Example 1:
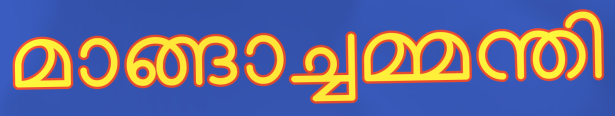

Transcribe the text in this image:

മാങ്ങാച്ചമ്മന്തി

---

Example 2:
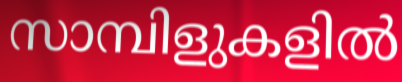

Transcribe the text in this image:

സാമ്പിളുകളിൽ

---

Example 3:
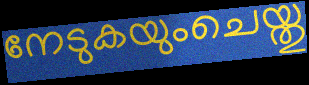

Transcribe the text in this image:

നേടുകയുംചെയ്തു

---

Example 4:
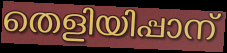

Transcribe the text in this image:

തെളിയിപ്പാന്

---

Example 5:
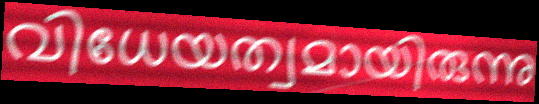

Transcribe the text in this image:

വിധേയത്വമായിരുന്നു